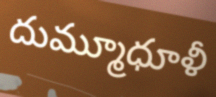
దుమ్మూధూళీ